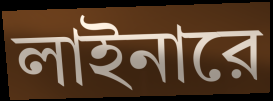
লাইনারে